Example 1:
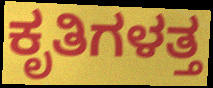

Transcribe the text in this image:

ಕೃತಿಗಳತ್ತ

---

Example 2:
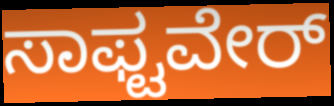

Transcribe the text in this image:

ಸಾಫ್ಟವೇರ್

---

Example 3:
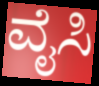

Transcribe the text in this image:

ವೈಸಿ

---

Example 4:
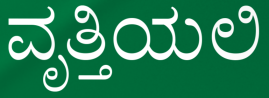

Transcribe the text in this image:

ವೃತ್ತಿಯಲಿ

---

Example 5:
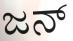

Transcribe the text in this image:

ಜನ್